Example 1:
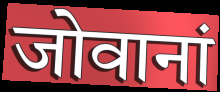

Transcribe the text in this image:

जोवानां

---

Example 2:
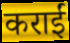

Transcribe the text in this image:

कराईं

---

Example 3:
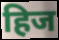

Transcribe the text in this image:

हिज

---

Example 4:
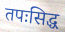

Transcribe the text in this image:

तपःसिद्ध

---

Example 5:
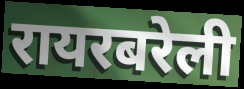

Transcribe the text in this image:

रायरबरेली